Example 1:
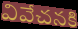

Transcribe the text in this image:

వివేచనకి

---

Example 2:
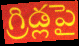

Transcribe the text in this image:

గ్రిడ్లపై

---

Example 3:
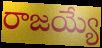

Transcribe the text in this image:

రాజయ్యే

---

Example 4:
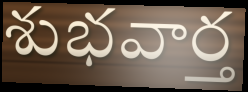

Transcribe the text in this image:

శుభవార్త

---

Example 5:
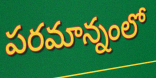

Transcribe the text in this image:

పరమాన్నంలో